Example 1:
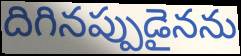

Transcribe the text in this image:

దిగినప్పుడైనను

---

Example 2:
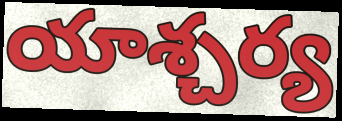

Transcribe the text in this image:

యాశ్చర్య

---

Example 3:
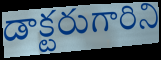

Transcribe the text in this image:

డాక్టరుగారిని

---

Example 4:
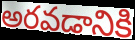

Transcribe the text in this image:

అరవడానికి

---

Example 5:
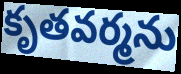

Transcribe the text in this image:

కృతవర్మను